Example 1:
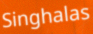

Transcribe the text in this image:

Singhalas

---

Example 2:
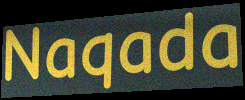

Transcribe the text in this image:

Naqada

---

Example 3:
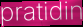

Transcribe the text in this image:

pratidin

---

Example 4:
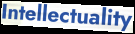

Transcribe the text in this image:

Intellectuality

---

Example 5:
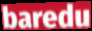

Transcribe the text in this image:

baredu